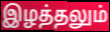
இழத்தலும்